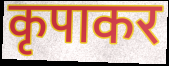
कृपाकर